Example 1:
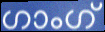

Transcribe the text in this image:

ഗാംഗ്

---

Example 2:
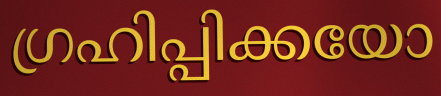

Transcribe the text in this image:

ഗ്രഹിപ്പിക്കയോ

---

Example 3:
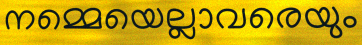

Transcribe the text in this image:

നമ്മെയെല്ലാവരെയും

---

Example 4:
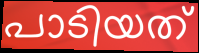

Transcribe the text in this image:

പാടിയത്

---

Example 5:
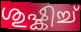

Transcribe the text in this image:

ശുഷ്കിച്ച്